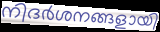
നിദർശനങ്ങളായി